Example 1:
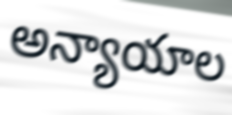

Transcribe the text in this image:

అన్యాయాల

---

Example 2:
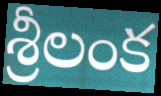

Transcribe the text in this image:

శ్రీలంక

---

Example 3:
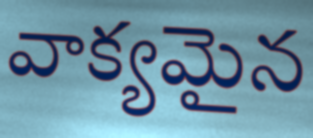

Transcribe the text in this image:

వాక్యమైన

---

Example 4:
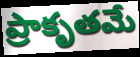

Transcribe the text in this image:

ప్రాకృతమే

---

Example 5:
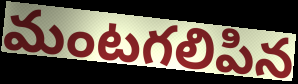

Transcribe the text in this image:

మంటగలిపిన